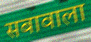
सबावाला